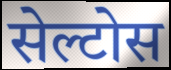
सेल्टोस